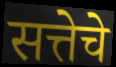
सत्तेचे